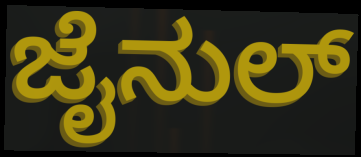
ಜೈನುಲ್